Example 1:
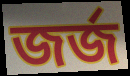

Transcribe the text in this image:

জৰ্জ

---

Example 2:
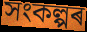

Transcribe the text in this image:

সংকল্পৰ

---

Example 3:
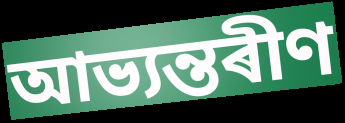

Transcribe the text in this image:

আভ্যন্তৰীণ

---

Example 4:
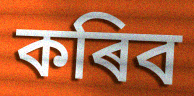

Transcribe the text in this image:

কৰিব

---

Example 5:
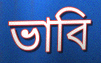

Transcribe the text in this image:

ভাবি